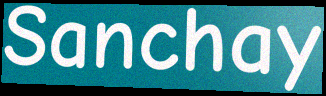
Sanchay